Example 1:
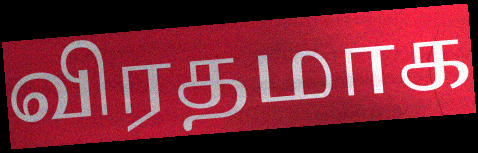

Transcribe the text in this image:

விரதமாக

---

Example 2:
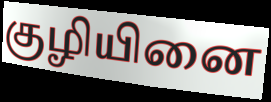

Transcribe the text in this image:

குழியினை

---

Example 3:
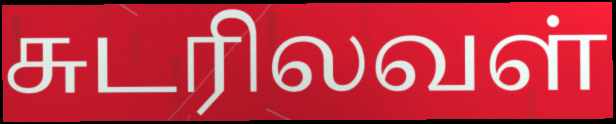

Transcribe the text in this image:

சுடரிலவள்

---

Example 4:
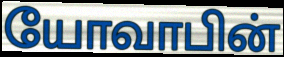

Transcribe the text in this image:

யோவாபின்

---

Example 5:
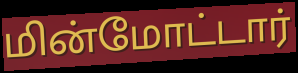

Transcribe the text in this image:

மின்மோட்டார்